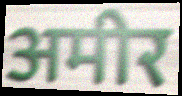
अमीर